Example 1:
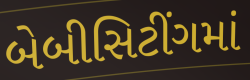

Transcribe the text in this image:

બેબીસિટીંગમાં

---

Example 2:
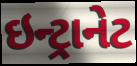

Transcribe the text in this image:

ઇન્ટ્રાનેટ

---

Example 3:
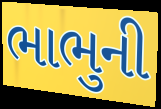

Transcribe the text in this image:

ભાભુની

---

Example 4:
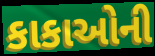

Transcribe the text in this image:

કાકાઓની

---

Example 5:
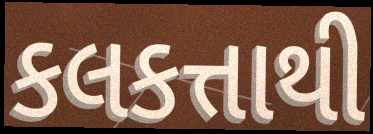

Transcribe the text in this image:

કલકત્તાથી